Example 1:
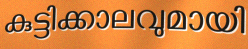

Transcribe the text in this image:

കുട്ടിക്കാലവുമായി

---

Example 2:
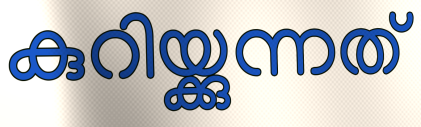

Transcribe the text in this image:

കുറിയ്ക്കുന്നത്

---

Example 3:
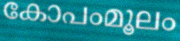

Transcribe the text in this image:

കോപംമൂലം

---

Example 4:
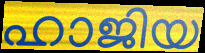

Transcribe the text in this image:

ഹാജിയ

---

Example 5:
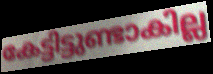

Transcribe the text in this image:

കേട്ടിട്ടുണ്ടാകില്ല